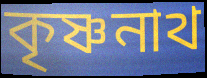
কৃষ্ণনাথ